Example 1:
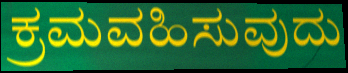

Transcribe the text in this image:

ಕ್ರಮವಹಿಸುವುದು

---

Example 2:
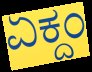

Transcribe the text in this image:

ಏಕ್ದಂ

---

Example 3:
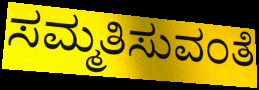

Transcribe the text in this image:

ಸಮ್ಮತಿಸುವಂತೆ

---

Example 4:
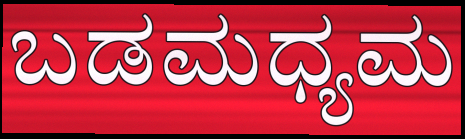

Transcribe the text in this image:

ಬಡಮಧ್ಯಮ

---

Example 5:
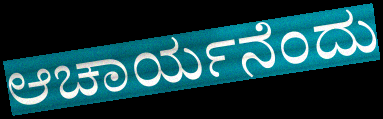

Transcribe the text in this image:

ಆಚಾರ್ಯನೆಂದು